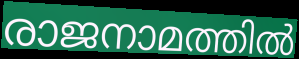
രാജനാമത്തിൽ